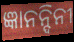
ଜ୍ଞାନନ୍ଦିନୀ